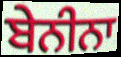
ਬੇਨੀਨਾ